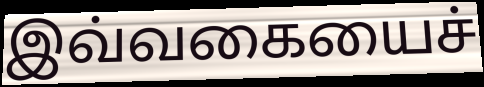
இவ்வகையைச்